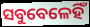
ସବୁବେଳେହିଁ